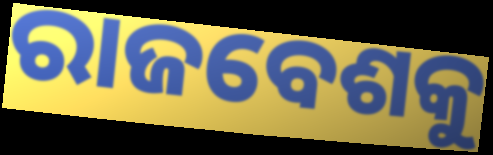
ରାଜବେଶକୁ